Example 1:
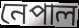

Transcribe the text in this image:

নেপাল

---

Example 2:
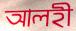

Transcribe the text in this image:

আলহী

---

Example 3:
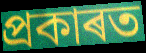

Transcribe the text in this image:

প্ৰকাৰত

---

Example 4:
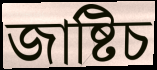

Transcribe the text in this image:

জাষ্টিচ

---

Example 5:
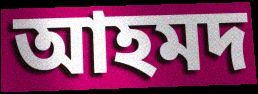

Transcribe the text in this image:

আহমদ